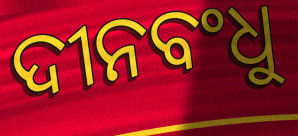
ଦୀନବଂଧୁ